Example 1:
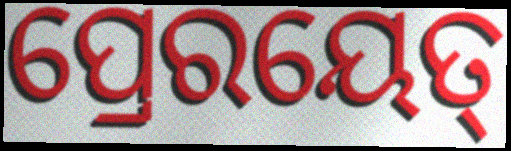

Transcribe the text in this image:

ପ୍ରେରୟେତ୍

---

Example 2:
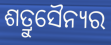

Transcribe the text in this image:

ଶତ୍ରୁସୈନ୍ୟର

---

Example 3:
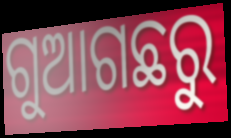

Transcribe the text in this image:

ଗୁଆଗଛରୁ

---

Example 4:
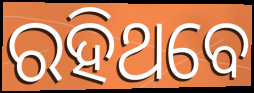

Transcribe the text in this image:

ରହିଥବେ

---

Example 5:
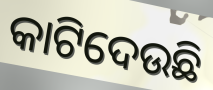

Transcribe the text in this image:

କାଟିଦେଉଛି